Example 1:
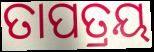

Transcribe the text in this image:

ତାପତ୍ରୟ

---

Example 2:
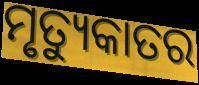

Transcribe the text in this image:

ମୃତ୍ୟୁକାତର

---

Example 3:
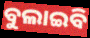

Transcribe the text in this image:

ବୁଲାଇବି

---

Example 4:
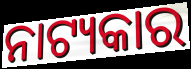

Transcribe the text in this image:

ନାଟ୍ଯକାର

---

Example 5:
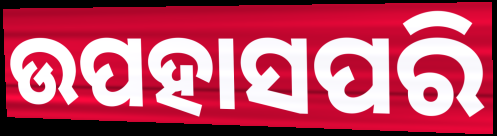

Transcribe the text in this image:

ଉପହାସପରି